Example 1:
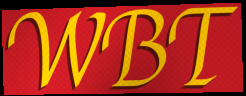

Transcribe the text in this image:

WBT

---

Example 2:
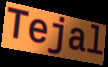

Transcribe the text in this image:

Tejal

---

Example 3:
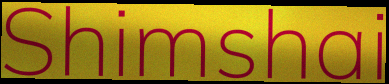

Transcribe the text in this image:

Shimshai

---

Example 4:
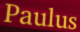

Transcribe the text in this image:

Paulus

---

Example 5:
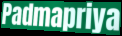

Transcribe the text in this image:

Padmapriya